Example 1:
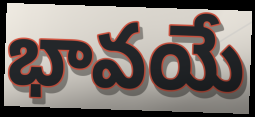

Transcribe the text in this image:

భావయే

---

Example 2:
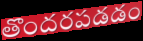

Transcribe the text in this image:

తొందరపడడం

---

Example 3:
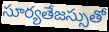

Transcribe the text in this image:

సూర్యతేజస్సుతో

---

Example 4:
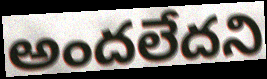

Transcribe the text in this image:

అందలేదని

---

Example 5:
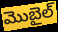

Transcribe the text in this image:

మొబైల్